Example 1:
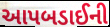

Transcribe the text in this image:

આપબડાઈની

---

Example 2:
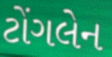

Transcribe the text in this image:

ટોંગલેન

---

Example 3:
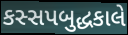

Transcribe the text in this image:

કસ્સપબુદ્ધકાલે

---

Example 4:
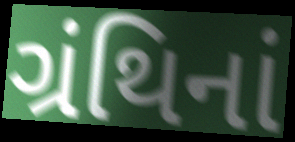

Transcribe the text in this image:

ગ્રંથિનાં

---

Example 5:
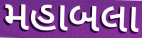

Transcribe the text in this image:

મહાબલા